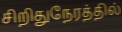
சிறிதுநேரத்தில்